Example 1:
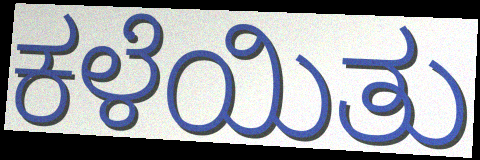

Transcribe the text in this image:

ಕಳೆಯಿತು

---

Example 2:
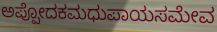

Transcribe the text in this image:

ಅಪ್ಪೋದಕಮಧುಪಾಯಸಮೇವ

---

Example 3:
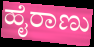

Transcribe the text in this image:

ಹೈರಾಣು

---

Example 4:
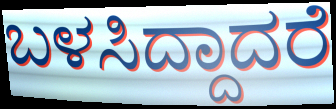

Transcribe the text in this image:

ಬಳಸಿದ್ದಾದರೆ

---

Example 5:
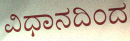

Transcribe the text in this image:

ವಿಧಾನದಿಂದ